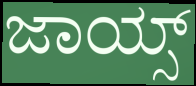
ಜಾಯ್ಸ್